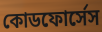
কোডফোর্সেস